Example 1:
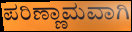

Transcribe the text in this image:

ಪರಿಣ್ಣಾಮವಾಗಿ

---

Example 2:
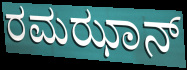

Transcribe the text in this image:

ರಮಝಾನ್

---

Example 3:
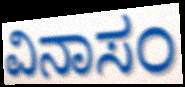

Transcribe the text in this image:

ವಿನಾಸಂ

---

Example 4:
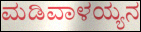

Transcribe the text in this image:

ಮಡಿವಾಳಯ್ಯನ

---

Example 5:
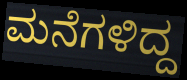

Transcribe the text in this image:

ಮನೆಗಳಿದ್ದ